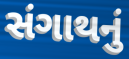
સંગાથનું